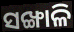
ସଙ୍ଖାଳି